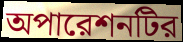
অপারেশনটির